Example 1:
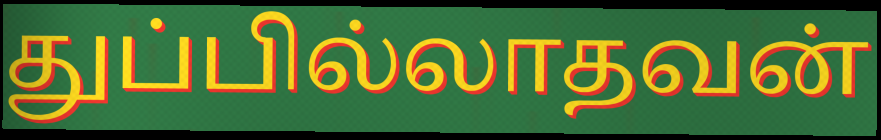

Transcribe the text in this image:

துப்பில்லாதவன்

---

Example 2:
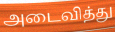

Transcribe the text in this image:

அடைவித்து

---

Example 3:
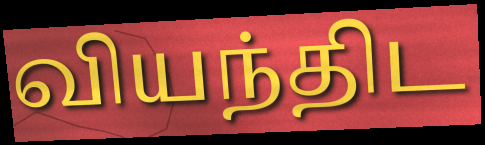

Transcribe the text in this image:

வியந்திட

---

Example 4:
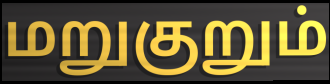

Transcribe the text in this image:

மறுகுறும்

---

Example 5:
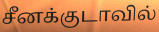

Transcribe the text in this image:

சீனக்குடாவில்